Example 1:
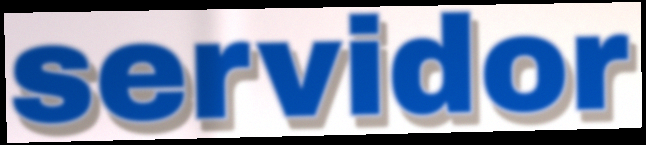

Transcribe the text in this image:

servidor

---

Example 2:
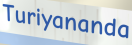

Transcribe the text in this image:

Turiyananda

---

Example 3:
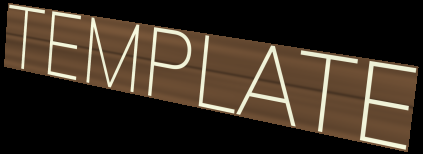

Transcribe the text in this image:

TEMPLATE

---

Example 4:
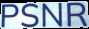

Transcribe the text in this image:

PSNR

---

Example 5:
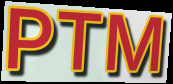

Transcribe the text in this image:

PTM